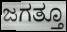
ಜಗತ್ತೂ